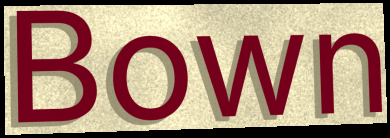
Bown